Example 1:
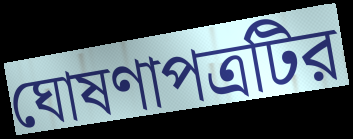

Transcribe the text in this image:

ঘোষণাপত্রটির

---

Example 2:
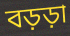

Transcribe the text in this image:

বড়ড়া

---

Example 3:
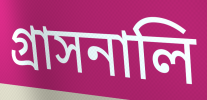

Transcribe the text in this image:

গ্রাসনালি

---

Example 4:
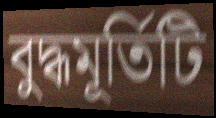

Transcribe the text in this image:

বুদ্ধমূর্তিটি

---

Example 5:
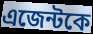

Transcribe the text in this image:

এজেন্টকে